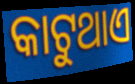
କାଟୁଥାଏ